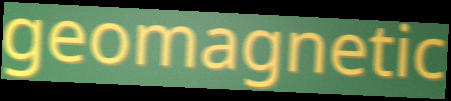
geomagnetic